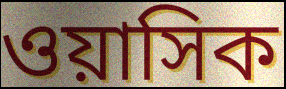
ওয়াসিক